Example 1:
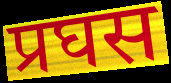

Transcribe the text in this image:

प्रघस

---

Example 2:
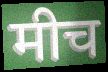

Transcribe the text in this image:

मीच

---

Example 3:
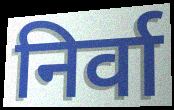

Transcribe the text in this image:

निर्वा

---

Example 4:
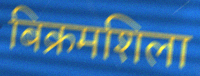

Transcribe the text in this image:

बिक्रमशिला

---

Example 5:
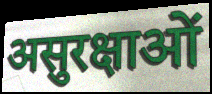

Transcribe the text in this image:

असुरक्षाओं